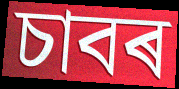
চাবৰ